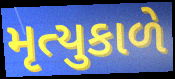
મૃત્યુકાળે